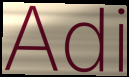
Adi